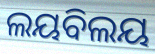
ଲୟବିଲୟ